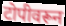
टोपीवरून